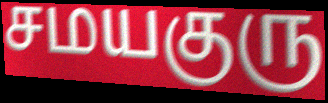
சமயகுரு